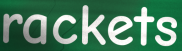
rackets